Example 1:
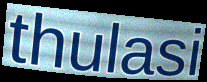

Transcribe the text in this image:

thulasi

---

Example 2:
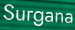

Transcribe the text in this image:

Surgana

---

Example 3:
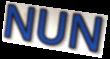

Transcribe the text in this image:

NUN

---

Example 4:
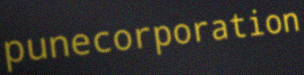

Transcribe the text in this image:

punecorporation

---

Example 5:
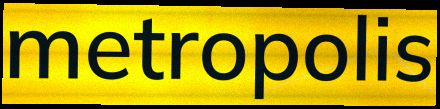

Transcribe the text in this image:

metropolis